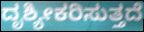
ದೃಶ್ಯೀಕರಿಸುತ್ತದೆ